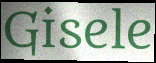
Gisele